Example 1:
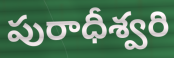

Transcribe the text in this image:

పురాధీశ్వరి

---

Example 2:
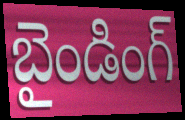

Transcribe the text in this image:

బైండింగ్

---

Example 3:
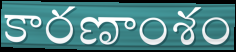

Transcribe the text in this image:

కారణాంశం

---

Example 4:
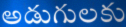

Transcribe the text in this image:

అడుగులకు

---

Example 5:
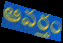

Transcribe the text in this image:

ఆవర్తం